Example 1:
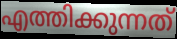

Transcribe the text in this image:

എത്തിക്കുന്നത്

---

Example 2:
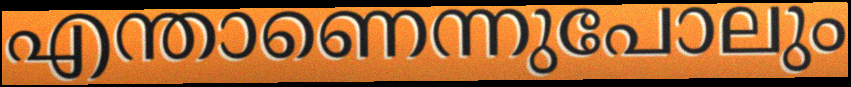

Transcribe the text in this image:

എന്താണെന്നുപോലും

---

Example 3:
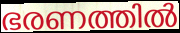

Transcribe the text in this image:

ഭരണത്തിൽ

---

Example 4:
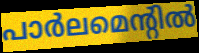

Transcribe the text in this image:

പാർലമെന്റിൽ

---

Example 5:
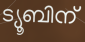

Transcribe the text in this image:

ട്യൂബിന്